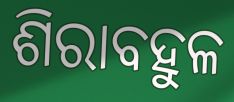
ଶିରାବହୁଳ